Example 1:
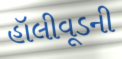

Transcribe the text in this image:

હૉલીવૂડની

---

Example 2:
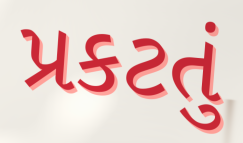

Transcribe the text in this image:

પ્રકટતું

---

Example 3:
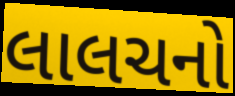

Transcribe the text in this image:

લાલચનો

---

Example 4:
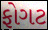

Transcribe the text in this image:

ફોગટ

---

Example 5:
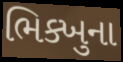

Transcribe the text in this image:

ભિક્ખુના